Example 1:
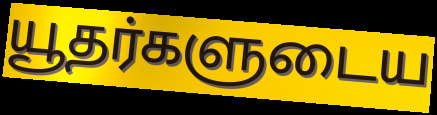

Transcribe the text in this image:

யூதர்களுடைய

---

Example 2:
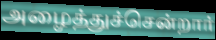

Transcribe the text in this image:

அழைத்துச்சென்றார்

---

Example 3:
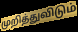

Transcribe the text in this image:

முறித்துவிடும்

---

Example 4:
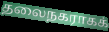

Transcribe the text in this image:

தலைநகராகக்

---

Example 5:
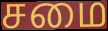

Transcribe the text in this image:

சமை